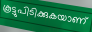
കൂട്ടുപിടിക്കുകയാണ്